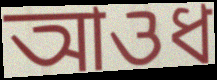
আওধ